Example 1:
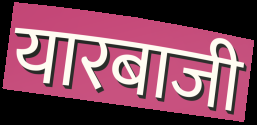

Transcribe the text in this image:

यारबाजी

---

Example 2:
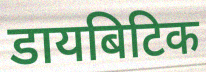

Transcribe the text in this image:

डायबिटिक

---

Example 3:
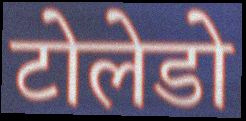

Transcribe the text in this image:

टोलेडो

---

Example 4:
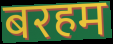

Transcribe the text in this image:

बरहम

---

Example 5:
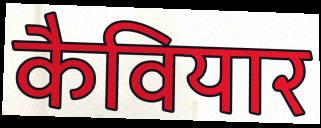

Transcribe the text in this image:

कैवियार